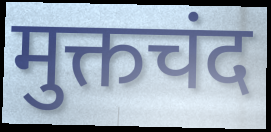
मुक्तचंद